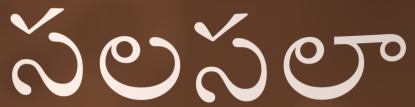
సలసలా